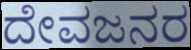
ದೇವಜನರ